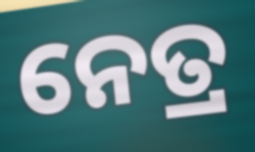
ନେତ୍ର